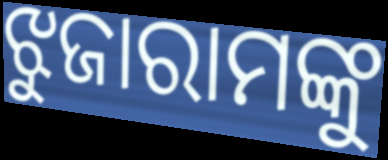
ଝୁଜାରାମଙ୍କୁ